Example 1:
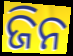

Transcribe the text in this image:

ଜିନ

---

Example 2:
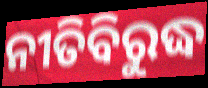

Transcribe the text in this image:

ନୀତିବିରୁଦ୍ଧ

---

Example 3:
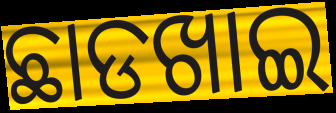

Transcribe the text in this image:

ଛାଡଖାଇ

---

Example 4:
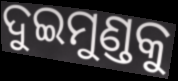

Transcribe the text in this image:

ଦୁଇମୁଣ୍ଡକୁ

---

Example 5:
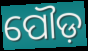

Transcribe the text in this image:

ପୌଡ଼